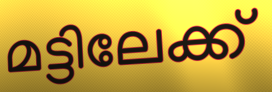
മട്ടിലേക്ക്